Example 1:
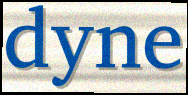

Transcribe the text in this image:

dyne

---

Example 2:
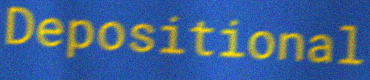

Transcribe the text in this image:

Depositional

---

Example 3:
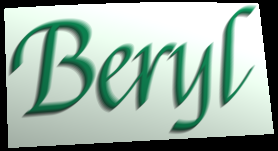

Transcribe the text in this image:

Beryl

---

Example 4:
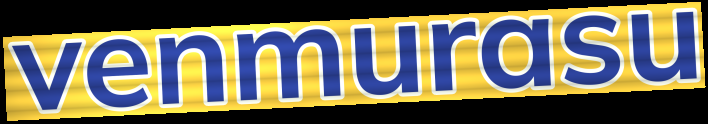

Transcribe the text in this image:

venmurasu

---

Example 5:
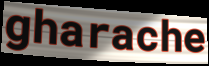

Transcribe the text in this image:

gharache